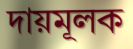
দায়মূলক